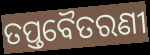
ତପ୍ତବୈତରଣୀ